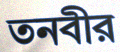
তনবীর